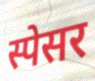
स्पेसर